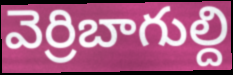
వెర్రిబాగుల్ది